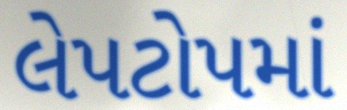
લેપટોપમાં